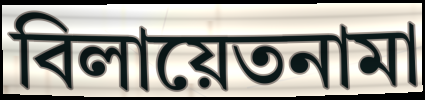
বিলায়েতনামা